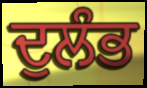
ਦੁਲੰਭ